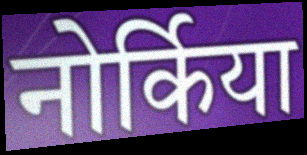
नोर्किया